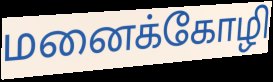
மனைக்கோழி